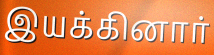
இயக்கினார்